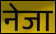
नेजा